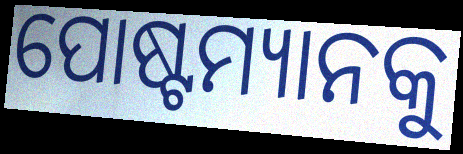
ପୋଷ୍ଟମ୍ୟାନକୁ